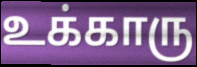
உக்காரு